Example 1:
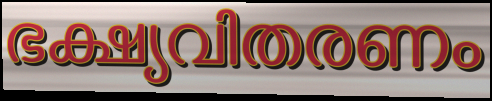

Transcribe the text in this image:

ഭക്ഷ്യവിതരണം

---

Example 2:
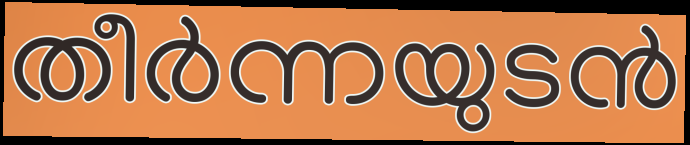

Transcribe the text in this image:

തീർന്നയുടൻ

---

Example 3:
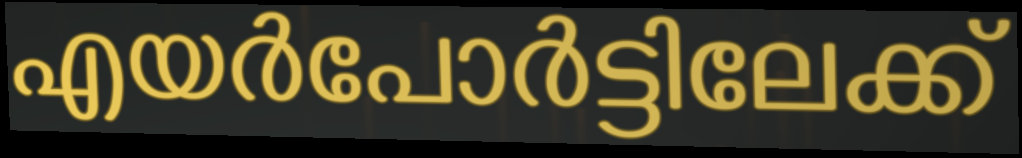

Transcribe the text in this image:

എയർപോർട്ടിലേക്ക്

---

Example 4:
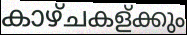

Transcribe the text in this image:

കാഴ്ചകള്ക്കും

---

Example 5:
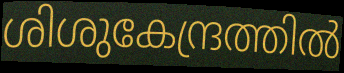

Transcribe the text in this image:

ശിശുകേന്ദ്രത്തിൽ